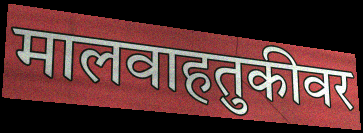
मालवाहतुकीवर